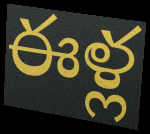
ఈళ్ల